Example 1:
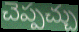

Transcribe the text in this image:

చెప్పచ్చు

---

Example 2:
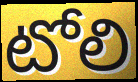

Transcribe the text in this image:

టోలి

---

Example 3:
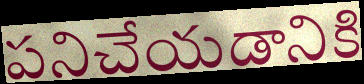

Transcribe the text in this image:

పనిచేయడానికి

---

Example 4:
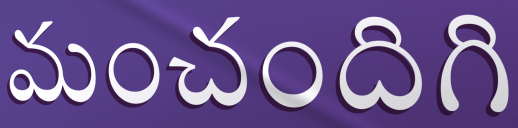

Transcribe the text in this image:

మంచందిగి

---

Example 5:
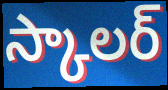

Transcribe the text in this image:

స్కాలర్